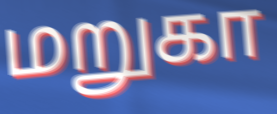
மறுகா